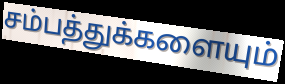
சம்பத்துக்களையும்